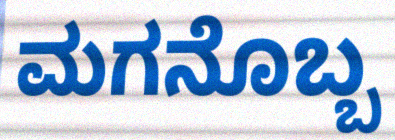
ಮಗನೊಬ್ಬ